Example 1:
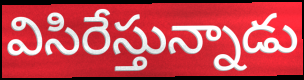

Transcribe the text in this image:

విసిరేస్తున్నాడు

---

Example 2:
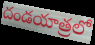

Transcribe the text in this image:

దండయాత్రలో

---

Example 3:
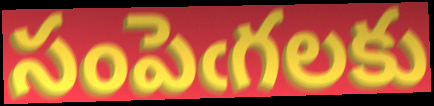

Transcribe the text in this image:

సంపెఁగలకు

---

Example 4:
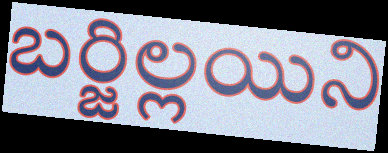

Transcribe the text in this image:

బర్జిల్లయిని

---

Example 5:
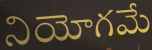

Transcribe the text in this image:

నియోగమే